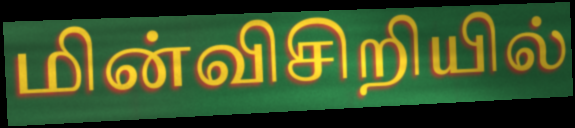
மின்விசிறியில்